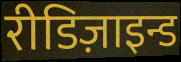
रीडिज़ाइन्ड